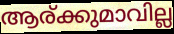
ആര്ക്കുമാവില്ല